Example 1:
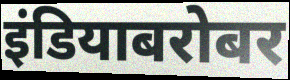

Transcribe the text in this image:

इंडियाबरोबर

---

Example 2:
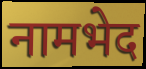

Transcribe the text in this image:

नामभेद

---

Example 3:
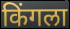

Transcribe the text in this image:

किंगला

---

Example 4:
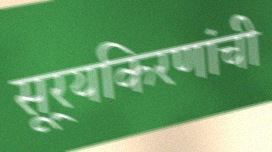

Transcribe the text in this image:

सूर्यकिरणांची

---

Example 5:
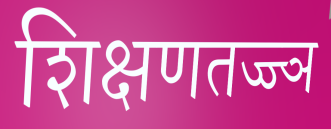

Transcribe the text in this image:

शिक्षणतज्ज्ञ